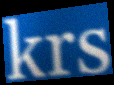
krs